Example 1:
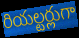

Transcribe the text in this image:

రియల్టర్లుగా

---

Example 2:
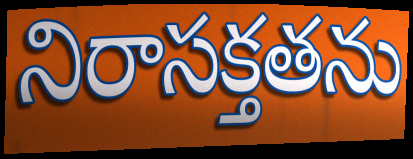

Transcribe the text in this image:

నిరాసక్తతను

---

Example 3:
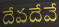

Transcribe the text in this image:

దేవదేవే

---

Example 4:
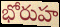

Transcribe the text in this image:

భోరుహ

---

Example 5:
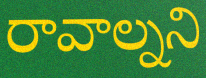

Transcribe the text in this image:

రావాల్నని